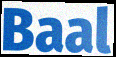
Baal